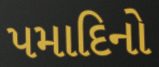
પમાદિનો